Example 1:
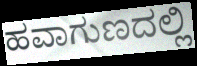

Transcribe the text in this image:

ಹವಾಗುಣದಲ್ಲಿ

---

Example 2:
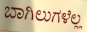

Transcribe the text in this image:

ಬಾಗಿಲುಗಳೆಲ್ಲ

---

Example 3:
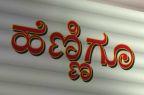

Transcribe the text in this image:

ಹೆಣ್ಣಿಗೂ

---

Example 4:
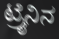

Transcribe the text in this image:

ಟ್ರೈನಿನ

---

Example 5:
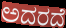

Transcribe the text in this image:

ಅದರದೆ